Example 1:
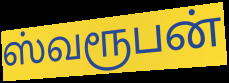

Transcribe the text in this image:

ஸ்வரூபன்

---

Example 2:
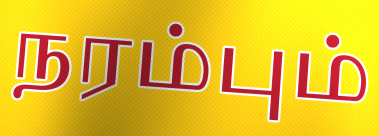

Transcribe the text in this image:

நரம்பும்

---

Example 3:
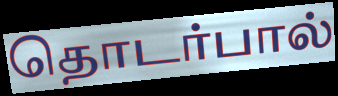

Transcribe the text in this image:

தொடர்பால்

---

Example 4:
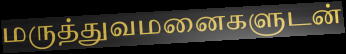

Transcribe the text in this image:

மருத்துவமனைகளுடன்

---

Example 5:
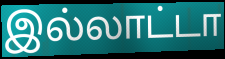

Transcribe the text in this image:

இல்லாட்டா